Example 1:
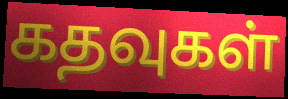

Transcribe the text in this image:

கதவுகள்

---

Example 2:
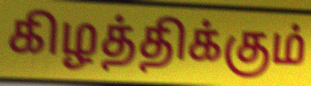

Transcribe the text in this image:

கிழத்திக்கும்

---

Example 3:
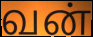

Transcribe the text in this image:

வன்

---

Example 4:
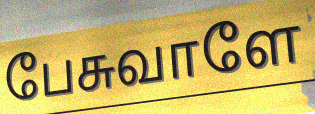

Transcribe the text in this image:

பேசுவாளே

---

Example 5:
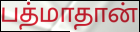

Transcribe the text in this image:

பத்மாதான்